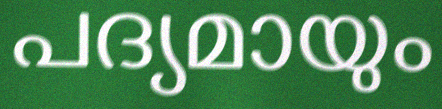
പദ്യമായും